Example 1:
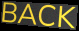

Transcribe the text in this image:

BACK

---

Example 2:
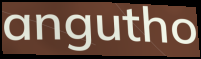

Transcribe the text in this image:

angutho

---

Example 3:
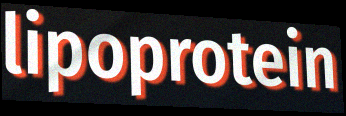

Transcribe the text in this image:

lipoprotein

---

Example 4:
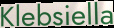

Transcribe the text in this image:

Klebsiella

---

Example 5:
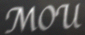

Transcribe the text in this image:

MOU